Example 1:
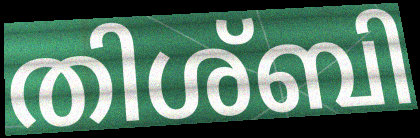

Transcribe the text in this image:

തിശ്ബി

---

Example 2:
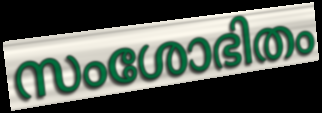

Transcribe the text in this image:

സംശോഭിതം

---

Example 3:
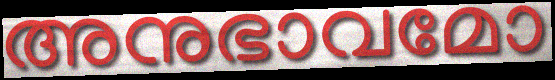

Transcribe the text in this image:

അനുഭാവമോ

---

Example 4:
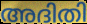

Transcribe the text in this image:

അദിതി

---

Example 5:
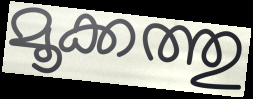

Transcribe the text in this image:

മൂക്കത്തു